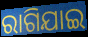
ରାଗିଯାଇ